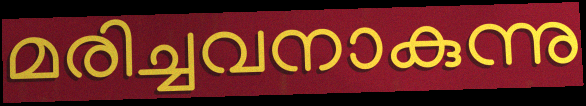
മരിച്ചവനാകുന്നു